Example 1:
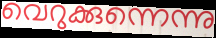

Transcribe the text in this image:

വെറുക്കുന്നെന്നു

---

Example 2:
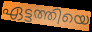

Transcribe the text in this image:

ഏട്ടത്തിയെ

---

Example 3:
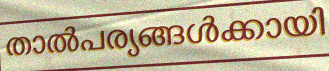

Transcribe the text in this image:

താൽപര്യങ്ങൾക്കായി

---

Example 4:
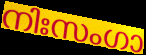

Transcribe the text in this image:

നിഃസംഗാ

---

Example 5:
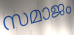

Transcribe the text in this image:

സമാജം